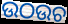
ଉଠଉଚ